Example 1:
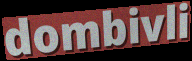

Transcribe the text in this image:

dombivli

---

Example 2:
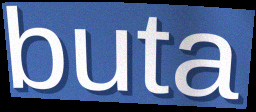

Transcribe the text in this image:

buta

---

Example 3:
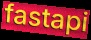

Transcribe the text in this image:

fastapi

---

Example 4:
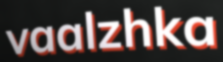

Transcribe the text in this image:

vaalzhka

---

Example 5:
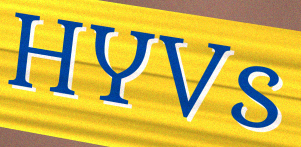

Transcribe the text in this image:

HYVs